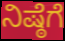
ನಿಷ್ಠೆಗೆ